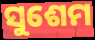
ସୁଶେମ